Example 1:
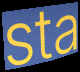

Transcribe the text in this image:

sta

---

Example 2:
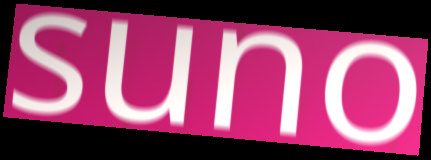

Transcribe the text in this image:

suno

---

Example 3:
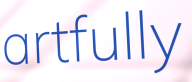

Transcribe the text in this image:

artfully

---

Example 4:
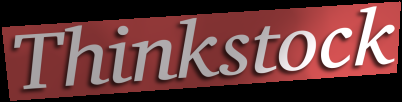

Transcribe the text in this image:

Thinkstock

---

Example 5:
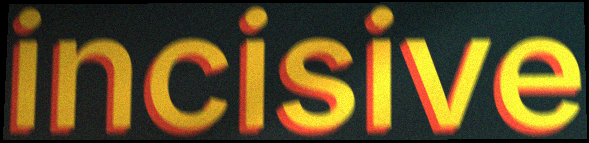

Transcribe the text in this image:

incisive